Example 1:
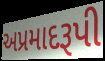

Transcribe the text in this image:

અપ્રમાદરૂપી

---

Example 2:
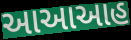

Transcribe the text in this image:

આઆઆહ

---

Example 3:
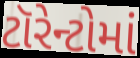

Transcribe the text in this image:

ટૉરેન્ટોમાં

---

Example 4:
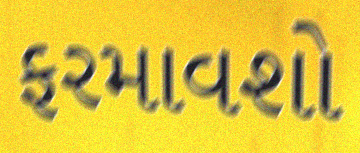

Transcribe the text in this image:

ફરમાવશો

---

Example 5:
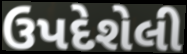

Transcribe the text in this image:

ઉપદેશેલી